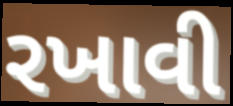
રખાવી